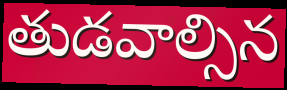
తుడవాల్సిన